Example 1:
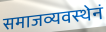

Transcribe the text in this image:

समाजव्यवस्थेनं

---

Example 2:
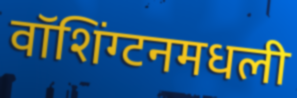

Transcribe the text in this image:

वॉशिंग्टनमधली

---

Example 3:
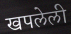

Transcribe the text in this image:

खपलेली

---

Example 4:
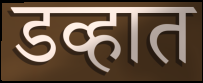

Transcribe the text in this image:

डव्हात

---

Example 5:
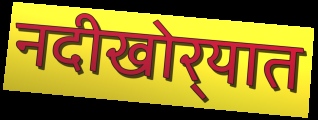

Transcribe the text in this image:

नदीखोर्‍यात